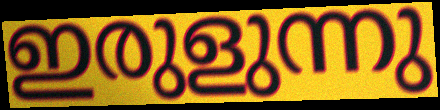
ഇരുളുന്നു